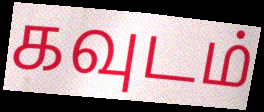
கவுடம்